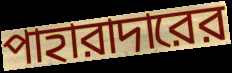
পাহারাদারের